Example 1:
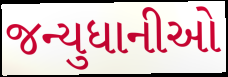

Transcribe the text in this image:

જન્યુધાનીઓ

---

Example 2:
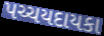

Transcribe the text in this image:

પચ્ચયદાયકા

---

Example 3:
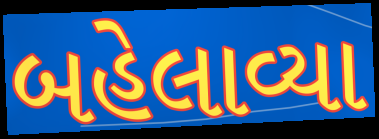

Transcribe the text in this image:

બહેલાવ્યા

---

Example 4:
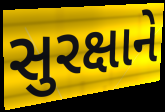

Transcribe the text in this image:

સુરક્ષાને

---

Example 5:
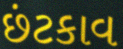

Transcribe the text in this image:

છંટકાવ